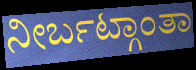
ನೀರ್ಬಟ್ಗಾಂತಾ